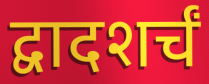
द्वादशर्चं